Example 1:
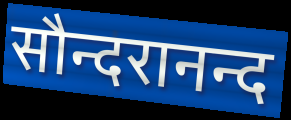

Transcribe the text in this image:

सौन्दरानन्द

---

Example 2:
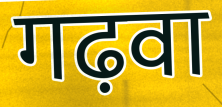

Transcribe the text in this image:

गढ़वा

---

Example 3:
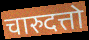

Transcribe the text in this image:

चारुदत्तो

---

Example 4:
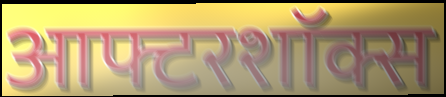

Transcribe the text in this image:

आफ्टरशॉक्स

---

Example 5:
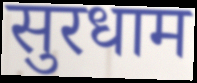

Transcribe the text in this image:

सुरधाम